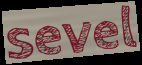
sevel